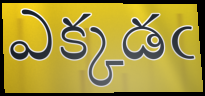
ఎక్కడఁ